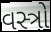
વસ્ત્રો